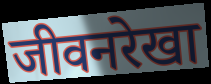
जीवनरेखा